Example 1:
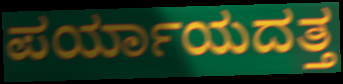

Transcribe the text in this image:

ಪರ್ಯಾಯದತ್ತ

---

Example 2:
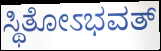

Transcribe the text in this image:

ಸ್ಥಿತೋಽಭವತ್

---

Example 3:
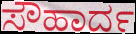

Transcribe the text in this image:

ಸೌಹಾರ್ದ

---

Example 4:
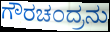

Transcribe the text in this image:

ಗೌರಚಂದ್ರನು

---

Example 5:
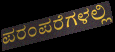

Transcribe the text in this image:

ಪರಂಪರೆಗಳಲ್ಲಿ